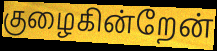
குழைகின்றேன்